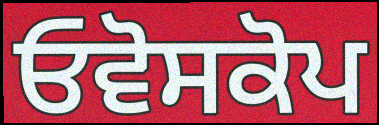
ਓਵੋਸਕੋਪ